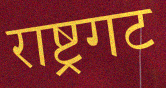
राष्ट्रगट